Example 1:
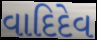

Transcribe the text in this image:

વાદિદેવ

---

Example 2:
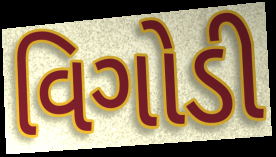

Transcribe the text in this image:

વિગોડી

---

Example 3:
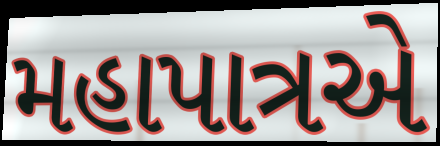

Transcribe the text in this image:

મહાપાત્રએ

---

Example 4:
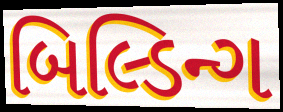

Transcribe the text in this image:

બિલ્ડિન્ગ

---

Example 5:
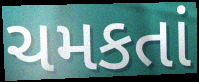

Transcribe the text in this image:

ચમકતાં